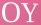
OY